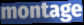
montage